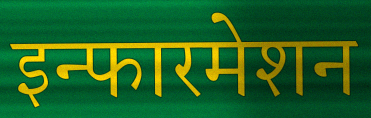
इन्फारमेशन